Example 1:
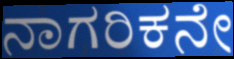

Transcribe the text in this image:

ನಾಗರಿಕನೇ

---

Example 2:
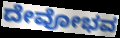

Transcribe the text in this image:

ದೇವೋಭವ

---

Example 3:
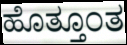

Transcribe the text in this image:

ಹೊತ್ತೂಂತ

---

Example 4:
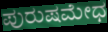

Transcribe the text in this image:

ಪುರುಷಮೇಧ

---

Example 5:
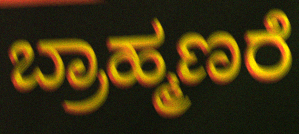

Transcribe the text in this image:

ಬ್ರಾಹ್ಮಣರೆ